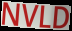
NVLD